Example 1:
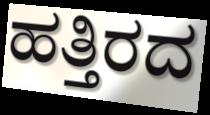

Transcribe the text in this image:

ಹತ್ತಿರದ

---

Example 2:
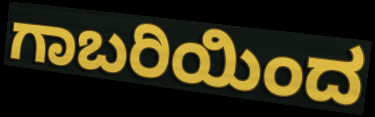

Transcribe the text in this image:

ಗಾಬರಿಯಿಂದ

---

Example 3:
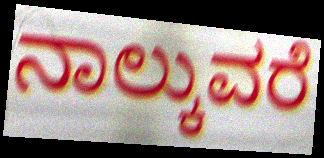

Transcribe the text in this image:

ನಾಲ್ಕುವರೆ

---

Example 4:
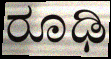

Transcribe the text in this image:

ರೂಢಿ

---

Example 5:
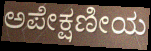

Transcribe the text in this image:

ಅಪೇಕ್ಷಣೀಯ